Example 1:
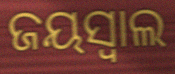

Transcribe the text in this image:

ଜୟସ୍ୱାଲ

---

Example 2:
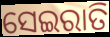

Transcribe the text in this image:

ସେଇରାତି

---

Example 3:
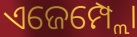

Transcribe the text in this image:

ଏଜେମ୍ପ୍ଲୋ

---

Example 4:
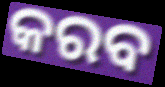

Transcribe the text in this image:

କରବ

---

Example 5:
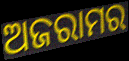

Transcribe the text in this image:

ଅଜରାମର